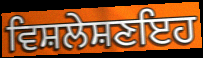
ਵਿਸ਼ਲੇਸ਼ਣਇਹ